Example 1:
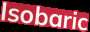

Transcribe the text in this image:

Isobaric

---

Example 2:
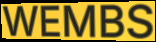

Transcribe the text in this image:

WEMBS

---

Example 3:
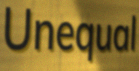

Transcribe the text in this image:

Unequal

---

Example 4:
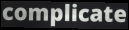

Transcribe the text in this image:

complicate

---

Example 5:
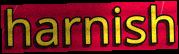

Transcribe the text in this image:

harnish